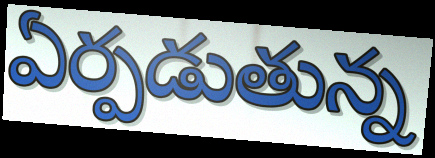
ఏర్పడుతున్న